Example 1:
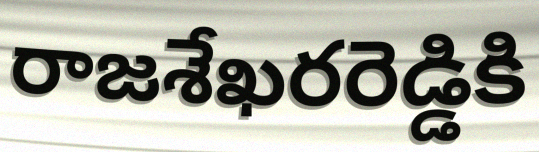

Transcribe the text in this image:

రాజశేఖరరెడ్డికి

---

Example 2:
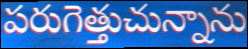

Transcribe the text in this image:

పరుగెత్తుచున్నాను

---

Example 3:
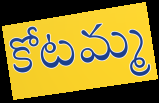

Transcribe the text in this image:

కోటమ్మ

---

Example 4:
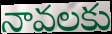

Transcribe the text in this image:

నావలకు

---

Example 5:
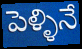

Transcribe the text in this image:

పెళ్ళినే